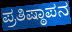
ಪ್ರತಿಷ್ಠಾಪನ